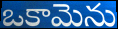
ఒకామెను